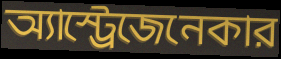
অ্যাস্ট্রেজেনেকার